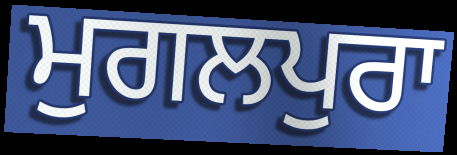
ਮੁਗਲਪੁਰਾ